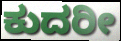
ಕುದರೀ